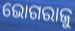
ଭୋଗରାଜୁ